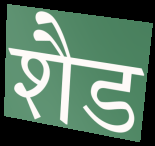
शैड